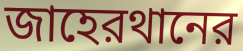
জাহেরথানের